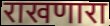
राखणारा